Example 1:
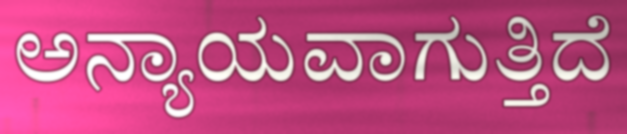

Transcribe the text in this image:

ಅನ್ಯಾಯವಾಗುತ್ತಿದೆ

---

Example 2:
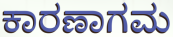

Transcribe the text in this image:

ಕಾರಣಾಗಮ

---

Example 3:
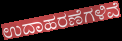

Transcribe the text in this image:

ಉದಾಹರಣೆಗಳಿವೆ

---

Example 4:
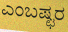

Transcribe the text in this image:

ಎಂಬಷ್ಟರ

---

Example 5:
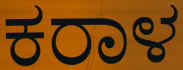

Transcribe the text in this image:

ಕರಾಳ